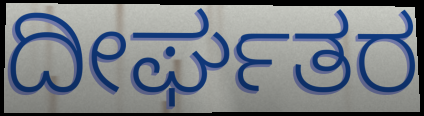
ದೀರ್ಘತರ